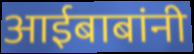
आईबाबांनी